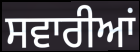
ਸਵਾਰੀਆਂ